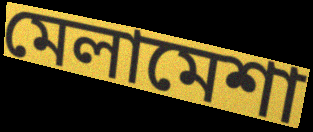
মেলামেশা